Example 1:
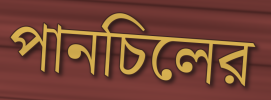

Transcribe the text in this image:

পানচিলের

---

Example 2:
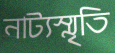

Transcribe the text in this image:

নাট্যস্মৃতি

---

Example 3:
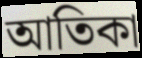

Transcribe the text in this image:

আতিকা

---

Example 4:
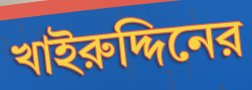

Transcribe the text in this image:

খাইরুদ্দিনের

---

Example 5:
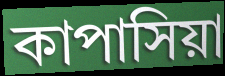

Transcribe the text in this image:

কাপাসিয়া